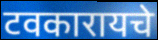
टवकारायचे